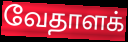
வேதாளக்